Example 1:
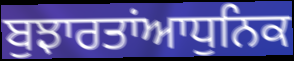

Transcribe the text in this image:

ਬੁਝਾਰਤਾਂਆਧੁਨਿਕ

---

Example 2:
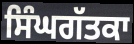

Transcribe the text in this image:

ਸਿੰਘਗੱਤਕਾ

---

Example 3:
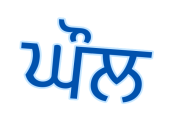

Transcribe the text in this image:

ਘੌਲ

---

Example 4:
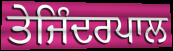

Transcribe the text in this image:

ਤੇਜਿੰਦਰਪਾਲ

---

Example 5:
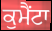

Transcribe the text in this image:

ਕੁਮੈਂਟਾ